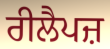
ਰੀਲੈਪਜ਼